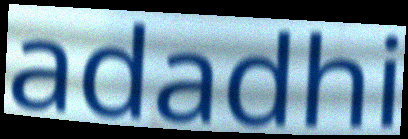
adadhi